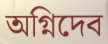
অগ্নিদেব